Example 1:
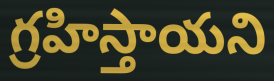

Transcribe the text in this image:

గ్రహిస్తాయని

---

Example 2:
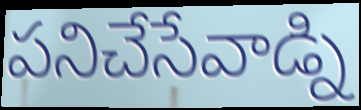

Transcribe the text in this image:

పనిచేసేవాడ్ని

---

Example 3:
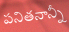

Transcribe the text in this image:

పనితనాన్నీ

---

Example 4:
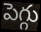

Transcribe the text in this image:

పెగ్గు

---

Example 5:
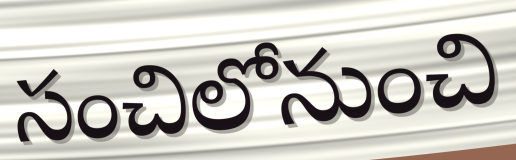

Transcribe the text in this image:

సంచిలోనుంచి